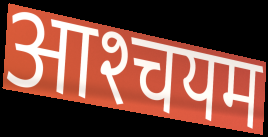
आश्चयम